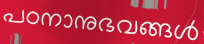
പഠനാനുഭവങ്ങൾ